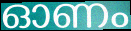
ഓണം